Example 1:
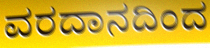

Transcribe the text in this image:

ವರದಾನದಿಂದ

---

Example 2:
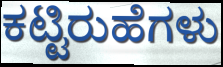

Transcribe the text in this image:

ಕಟ್ಟಿರುಹೆಗಳು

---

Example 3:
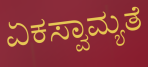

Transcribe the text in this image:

ಏಕಸ್ವಾಮ್ಯತೆ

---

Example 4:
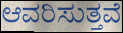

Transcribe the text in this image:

ಆವರಿಸುತ್ತವೆ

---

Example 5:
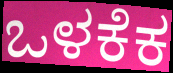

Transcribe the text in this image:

ಒಳಕೆಕ